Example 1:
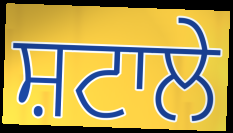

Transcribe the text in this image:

ਸ਼ਟਾਲੇ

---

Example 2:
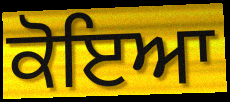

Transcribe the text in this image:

ਕੋਇਆ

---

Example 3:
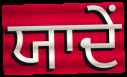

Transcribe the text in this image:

ਯਾਦੇਂ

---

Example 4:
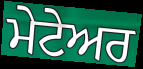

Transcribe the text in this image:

ਮੇਟੇਅਰ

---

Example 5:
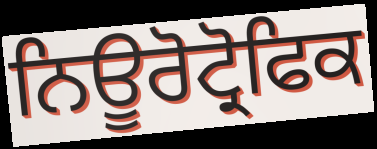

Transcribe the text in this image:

ਨਿਊਰੋਟ੍ਰੋਫਿਕ